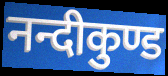
नन्दीकुण्ड